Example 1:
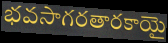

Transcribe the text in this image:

భవసాగరతారకాయై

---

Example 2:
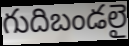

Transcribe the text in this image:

గుదిబండలై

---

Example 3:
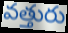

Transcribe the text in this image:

వత్తురు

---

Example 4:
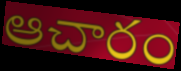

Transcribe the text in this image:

ఆచారం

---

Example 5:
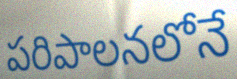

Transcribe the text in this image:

పరిపాలనలోనే